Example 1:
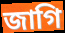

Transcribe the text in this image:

জাগি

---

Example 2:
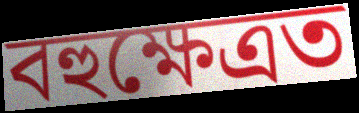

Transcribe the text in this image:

বহুক্ষেত্ৰত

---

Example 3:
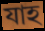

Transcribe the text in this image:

যাহ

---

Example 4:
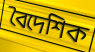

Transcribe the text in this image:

বৈদেশিক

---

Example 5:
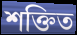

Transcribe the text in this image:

শক্তিত